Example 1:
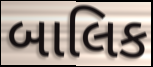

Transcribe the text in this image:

બાલિક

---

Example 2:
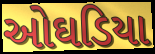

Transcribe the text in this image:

ઓઘડિયા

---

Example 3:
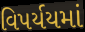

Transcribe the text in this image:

વિપર્યયમાં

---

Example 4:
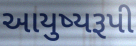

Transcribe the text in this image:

આયુષ્યરૂપી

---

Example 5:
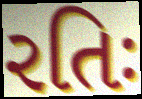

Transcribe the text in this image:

રતિઃ